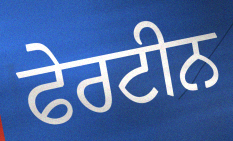
ਫੇਰਟੀਨ